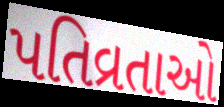
પતિવ્રતાઓ